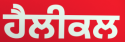
ਹੈਲੀਕਲ